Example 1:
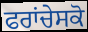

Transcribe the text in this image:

ਫਰਾਂਚੇਸਕੋ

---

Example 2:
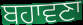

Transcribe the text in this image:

ਬਹਾਵਣਾ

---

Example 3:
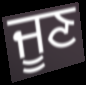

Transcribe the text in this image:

ਜੂਣ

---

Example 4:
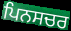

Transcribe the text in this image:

ਪਿਨਸਚਰ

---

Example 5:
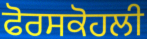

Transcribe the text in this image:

ਫੋਰਸਕੋਹਲੀ